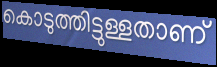
കൊടുത്തിട്ടുള്ളതാണ്